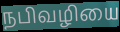
நபிவழியை